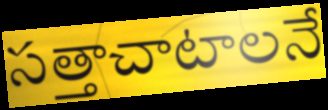
సత్తాచాటాలనే